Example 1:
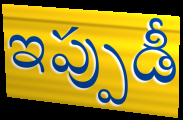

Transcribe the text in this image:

ఇప్పుడీ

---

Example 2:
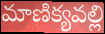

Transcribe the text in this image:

మాణిక్యవల్లి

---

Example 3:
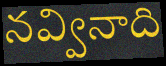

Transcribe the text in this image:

నవ్వినాది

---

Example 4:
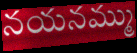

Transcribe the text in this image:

నయనమ్ము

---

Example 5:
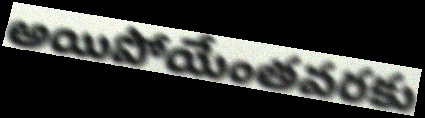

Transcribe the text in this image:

అయిపోయేంతవరకు